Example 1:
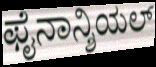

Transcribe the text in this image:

ಫೈನಾನ್ಶಿಯಲ್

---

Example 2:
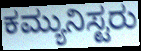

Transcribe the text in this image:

ಕಮ್ಯುನಿಸ್ಟರು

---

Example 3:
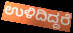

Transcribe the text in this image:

ಉಳಿದಿದ್ದರೆ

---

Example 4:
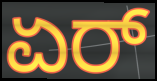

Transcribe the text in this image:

ಏರ್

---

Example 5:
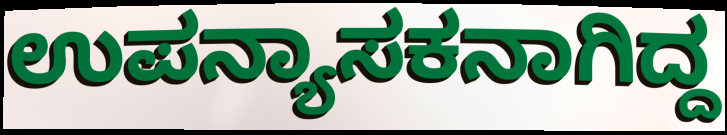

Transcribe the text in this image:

ಉಪನ್ಯಾಸಕನಾಗಿದ್ದ